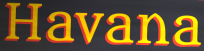
Havana